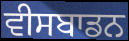
ਵੀਸਬਾਡਨ